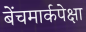
बेंचमार्कपेक्षा